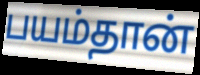
பயம்தான்